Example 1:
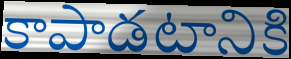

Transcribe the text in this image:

కాపాడటానికి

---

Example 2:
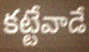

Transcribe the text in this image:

కట్టేవాడే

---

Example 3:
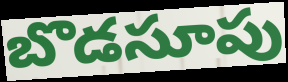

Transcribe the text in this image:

బొడసూపు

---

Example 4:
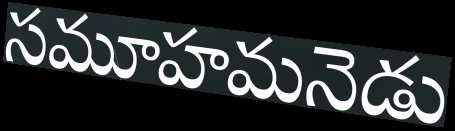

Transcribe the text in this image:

సమూహమనెడు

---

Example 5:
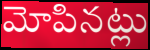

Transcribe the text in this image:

మోపినట్లు